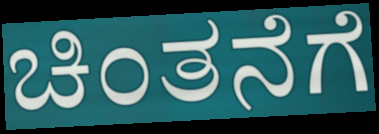
ಚಿಂತನೆಗೆ